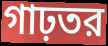
গাঢ়তর